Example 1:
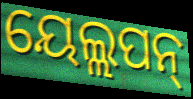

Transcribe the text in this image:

ୟେଲ୍ଲପନ୍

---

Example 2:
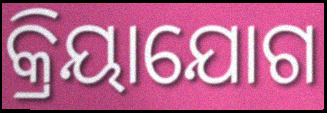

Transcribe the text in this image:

କ୍ରିୟାଯୋଗ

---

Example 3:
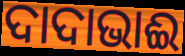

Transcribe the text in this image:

ଦାଦାଭାଈ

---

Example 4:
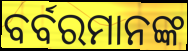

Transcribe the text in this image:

ବର୍ବରମାନଙ୍କ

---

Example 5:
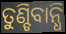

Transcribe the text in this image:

ତୁଣ୍ଡିବାନ୍ଧି